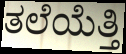
ತಲೆಯೆತ್ತಿ